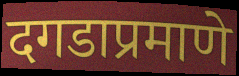
दगडाप्रमाणे